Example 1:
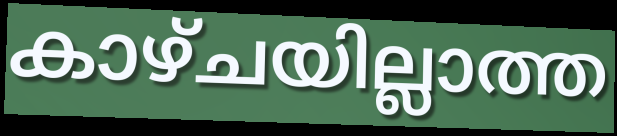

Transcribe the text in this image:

കാഴ്ചയില്ലാത്ത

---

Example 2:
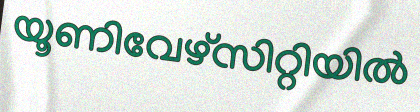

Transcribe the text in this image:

യൂണിവേഴ്സിറ്റിയിൽ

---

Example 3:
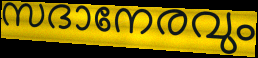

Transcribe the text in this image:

സദാനേരവും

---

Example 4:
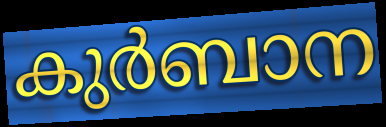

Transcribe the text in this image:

കുർബാന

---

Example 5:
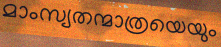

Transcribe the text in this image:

മാംസ്യതന്മാത്രയെയും